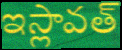
ఇస్లావత్